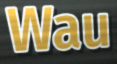
Wau